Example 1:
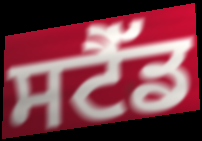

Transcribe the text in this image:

ਸਟੈੱਡ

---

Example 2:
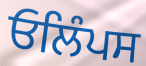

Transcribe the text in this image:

ਓਲਿੰਪਸ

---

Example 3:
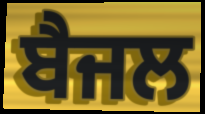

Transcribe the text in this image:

ਬੈਜਲ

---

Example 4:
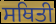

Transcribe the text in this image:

ਸਥਿਤੀ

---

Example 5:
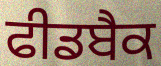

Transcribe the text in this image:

ਫੀਡਬੈਕ